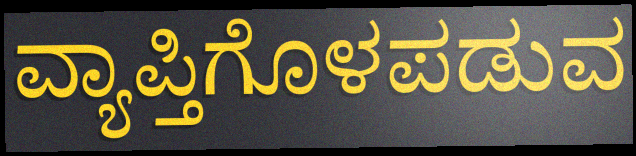
ವ್ಯಾಪ್ತಿಗೊಳಪಡುವ